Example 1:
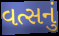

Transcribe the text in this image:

વત્સનું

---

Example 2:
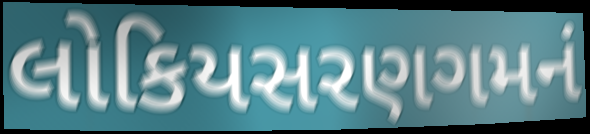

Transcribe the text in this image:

લોકિયસરણગમનં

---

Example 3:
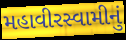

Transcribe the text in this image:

મહાવીરસ્વામીનું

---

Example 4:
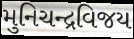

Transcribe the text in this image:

મુનિચન્દ્રવિજય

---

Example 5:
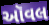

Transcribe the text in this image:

ઑવલ